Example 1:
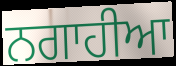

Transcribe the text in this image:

ਨਗਾਹੀਆ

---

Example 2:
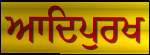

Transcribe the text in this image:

ਆਦਿਪੁਰਖ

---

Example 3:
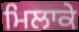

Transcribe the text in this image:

ਮਿਲਾਕੇ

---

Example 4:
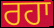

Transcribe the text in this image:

ਰਹਾ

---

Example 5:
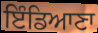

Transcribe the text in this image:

ਇੰਡਿਆਣਾ